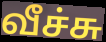
வீச்சு